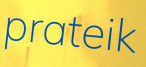
prateik